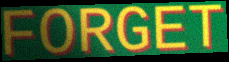
FORGET